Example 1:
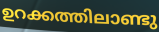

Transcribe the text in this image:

ഉറക്കത്തിലാണ്ടു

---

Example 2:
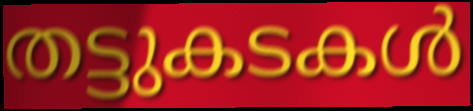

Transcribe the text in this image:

തട്ടുകടകൾ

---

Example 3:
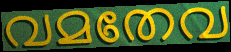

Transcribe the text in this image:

വമതേവ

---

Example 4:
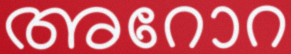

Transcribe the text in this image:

അറോറ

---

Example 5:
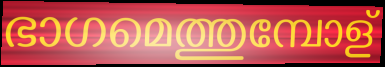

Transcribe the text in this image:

ഭാഗമെത്തുമ്പോള്